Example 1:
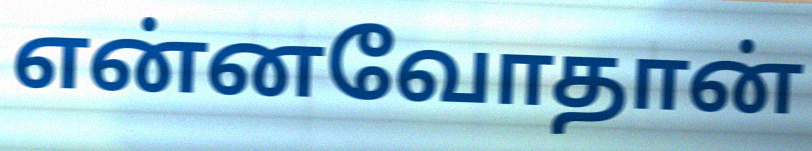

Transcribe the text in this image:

என்னவோதான்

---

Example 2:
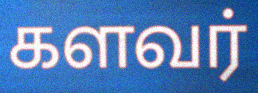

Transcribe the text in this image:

களவர்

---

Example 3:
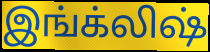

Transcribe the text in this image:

இங்க்லிஷ்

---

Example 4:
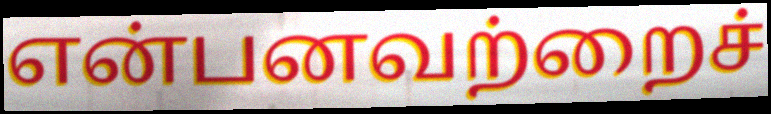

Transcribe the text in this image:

என்பனவற்றைச்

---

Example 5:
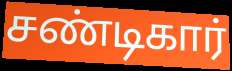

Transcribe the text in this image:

சண்டிகார்